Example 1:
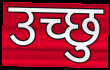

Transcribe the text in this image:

उच्छु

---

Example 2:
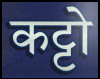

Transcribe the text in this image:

कट्टो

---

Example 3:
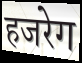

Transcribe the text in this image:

हजरेग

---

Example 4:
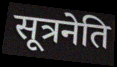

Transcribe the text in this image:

सूत्रनेति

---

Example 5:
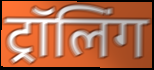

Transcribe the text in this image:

ट्रॉलिंग